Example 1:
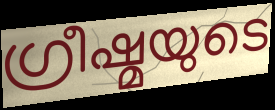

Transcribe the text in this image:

ഗ്രീഷ്മയുടെ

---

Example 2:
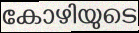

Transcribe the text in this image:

കോഴിയുടെ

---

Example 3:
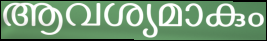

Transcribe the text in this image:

ആവശ്യമാകും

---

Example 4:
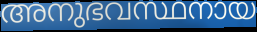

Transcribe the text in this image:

അനുഭവസ്ഥനായ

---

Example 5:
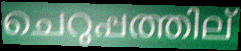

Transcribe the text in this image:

ചെറുപ്പത്തില്